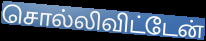
சொல்லிவிட்டேன்